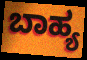
ಬಾಹ್ಯ